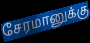
சேரமானுக்கு